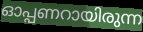
ഓപ്പണറായിരുന്ന